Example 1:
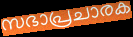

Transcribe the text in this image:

സഭാപ്രചാരക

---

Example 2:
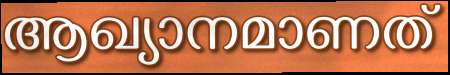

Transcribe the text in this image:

ആഖ്യാനമാണത്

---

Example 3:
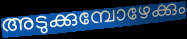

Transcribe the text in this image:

അടുക്കുമ്പോഴേക്കും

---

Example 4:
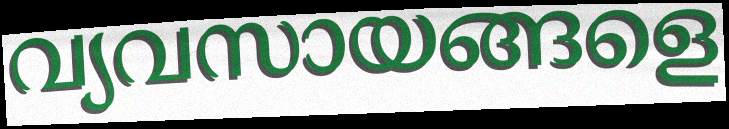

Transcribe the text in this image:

വ്യവസായങ്ങളെ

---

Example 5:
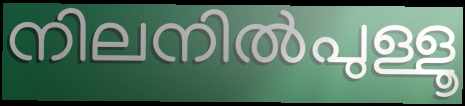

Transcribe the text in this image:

നിലനിൽപുള്ളൂ